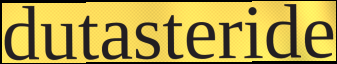
dutasteride